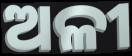
ଅଳୀ